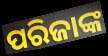
ପରିଜାଙ୍କ